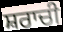
ਸ਼ਰਾਚੀ